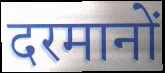
दरमानों